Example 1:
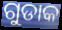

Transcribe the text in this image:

ଗୁଡାକ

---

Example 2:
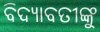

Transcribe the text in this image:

ବିଦ୍ୟାବତୀଙ୍କୁ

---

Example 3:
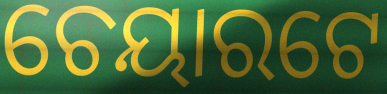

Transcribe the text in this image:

ଚେୟାରଟେ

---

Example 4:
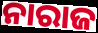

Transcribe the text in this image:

ନାରାଜ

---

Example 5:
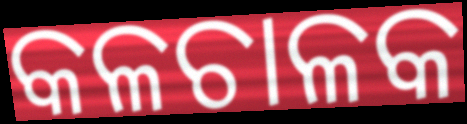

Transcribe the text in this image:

କଳଚାଳକ